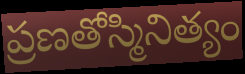
ప్రణతోస్మినిత్యం